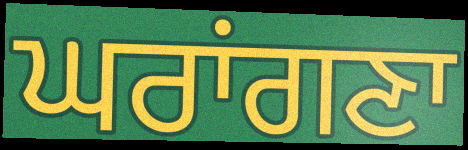
ਘਰਾਂਗਣਾ